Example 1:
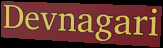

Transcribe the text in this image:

Devnagari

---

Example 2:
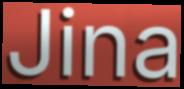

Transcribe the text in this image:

Jina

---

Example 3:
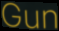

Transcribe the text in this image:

Gun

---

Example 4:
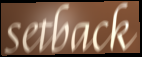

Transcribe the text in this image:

setback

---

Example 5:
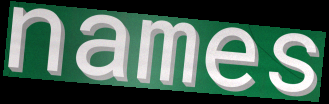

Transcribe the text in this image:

names